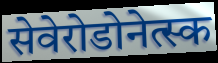
सेवेरोडोनेत्स्क